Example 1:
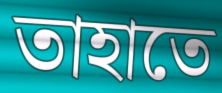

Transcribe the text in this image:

তাহাতে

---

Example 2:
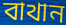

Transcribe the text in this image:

বাথান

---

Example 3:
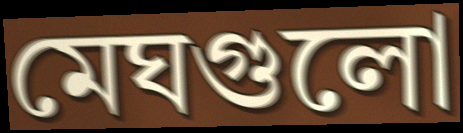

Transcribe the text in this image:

মেঘগুলো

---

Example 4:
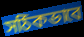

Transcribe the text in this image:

সঠিকভাবে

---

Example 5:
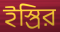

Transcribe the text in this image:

ইস্ত্রির